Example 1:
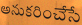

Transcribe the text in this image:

అనుకరించేసే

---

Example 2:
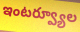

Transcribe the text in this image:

ఇంటర్వ్యూల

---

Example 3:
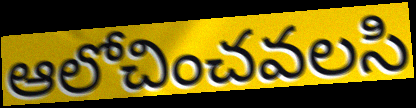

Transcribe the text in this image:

ఆలోచించవలసి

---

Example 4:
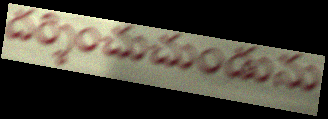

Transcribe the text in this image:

దర్శించుచుండును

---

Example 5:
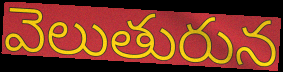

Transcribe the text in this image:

వెలుతురున